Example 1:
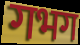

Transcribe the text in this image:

गभग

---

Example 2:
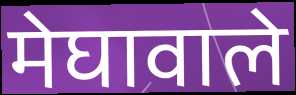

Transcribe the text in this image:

मेघावाले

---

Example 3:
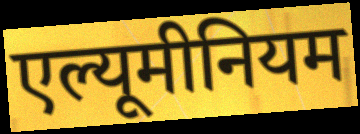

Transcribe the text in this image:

एल्‍यूमीनियम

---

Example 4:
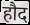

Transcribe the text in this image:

हौद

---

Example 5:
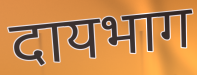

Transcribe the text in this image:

दायभाग